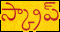
స్క్రాప్